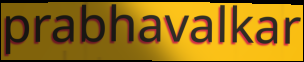
prabhavalkar